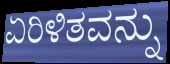
ಏರಿಳಿತವನ್ನು